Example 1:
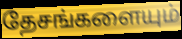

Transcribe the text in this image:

தேசங்களையும்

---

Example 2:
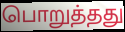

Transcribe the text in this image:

பொறுத்தது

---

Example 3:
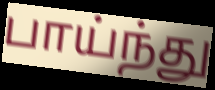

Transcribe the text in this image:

பாய்ந்து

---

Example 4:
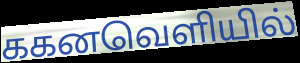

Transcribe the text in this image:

ககனவெளியில்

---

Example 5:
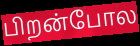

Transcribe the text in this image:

பிறன்போல